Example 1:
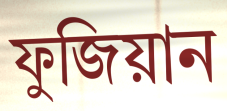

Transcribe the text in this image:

ফুজিয়ান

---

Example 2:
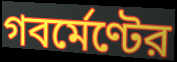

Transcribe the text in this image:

গবর্মেণ্টের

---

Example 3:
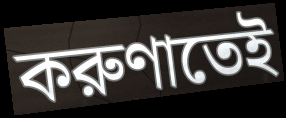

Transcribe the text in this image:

করুণাতেই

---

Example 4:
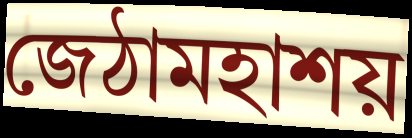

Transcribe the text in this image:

জেঠামহাশয়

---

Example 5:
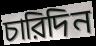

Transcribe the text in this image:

চারিদিন